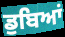
ਡੁਬਿਆਂ